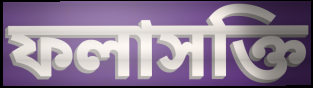
ফলাসক্তি